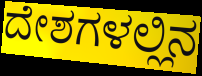
ದೇಶಗಳಲ್ಲಿನ